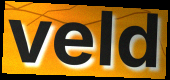
veld